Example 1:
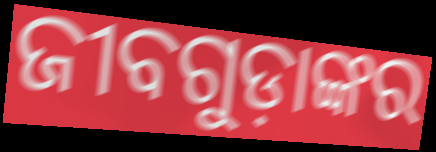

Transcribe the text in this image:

ଜୀବଗୁଡ଼ାଙ୍କର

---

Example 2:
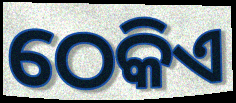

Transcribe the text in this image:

ଠେକିଏ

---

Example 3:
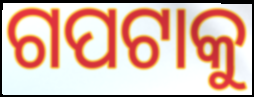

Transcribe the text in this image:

ଗପଟାକୁ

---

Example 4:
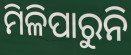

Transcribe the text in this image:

ମିଳିପାରୁନି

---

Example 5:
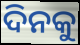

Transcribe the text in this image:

ଦିନକୁ